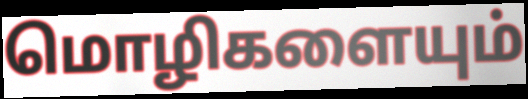
மொழிகளையும்